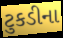
ટુકડીના